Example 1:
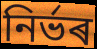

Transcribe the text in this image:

নিৰ্ভৰ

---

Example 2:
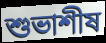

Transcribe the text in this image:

শুভাশীষ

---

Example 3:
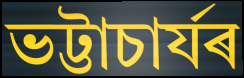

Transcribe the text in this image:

ভট্টাচাৰ্যৰ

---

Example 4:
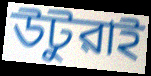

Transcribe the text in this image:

উটুৱাই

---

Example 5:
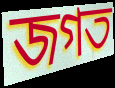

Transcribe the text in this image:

জগত